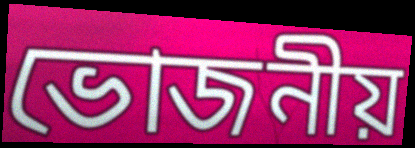
ভোজনীয়